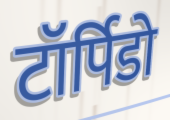
टॉर्पिडो